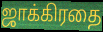
ஜாக்கிரதை